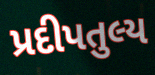
પ્રદીપતુલ્ય